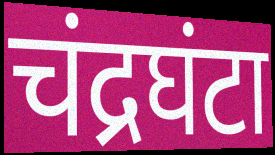
चंद्रघंटा